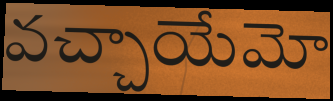
వచ్చాయేమో